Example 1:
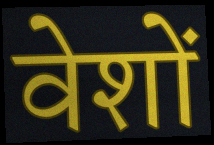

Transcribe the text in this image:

वेशों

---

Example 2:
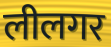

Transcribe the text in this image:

लीलगर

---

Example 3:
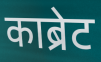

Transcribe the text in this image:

काब्रेट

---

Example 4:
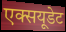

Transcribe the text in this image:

एक्सयूडेट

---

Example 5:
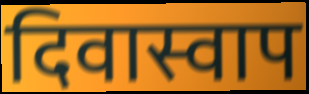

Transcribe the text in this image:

दिवास्वाप